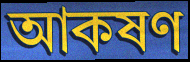
আকষণ